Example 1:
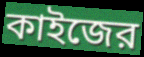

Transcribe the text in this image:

কাইজের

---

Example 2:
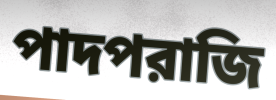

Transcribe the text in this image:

পাদপরাজি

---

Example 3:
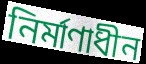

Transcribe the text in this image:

নির্মাণাধীন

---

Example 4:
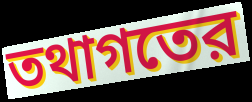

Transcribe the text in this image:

তথাগতের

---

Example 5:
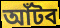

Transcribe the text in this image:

আঁটব